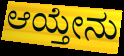
ಆಯ್ತೇನು